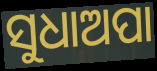
ସୁଧାଅପା